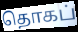
தொகப்